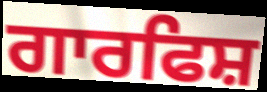
ਗਾਰਫਿਸ਼